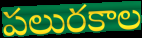
పలురకాల